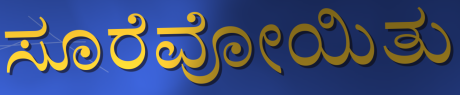
ಸೂರೆವೋಯಿತು